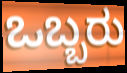
ಒಬ್ಬರು